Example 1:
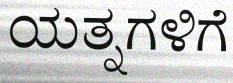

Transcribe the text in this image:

ಯತ್ನಗಳಿಗೆ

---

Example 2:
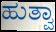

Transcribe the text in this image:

ಹುತ್ವಾ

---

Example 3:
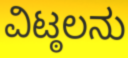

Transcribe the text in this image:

ವಿಟ್ಠಲನು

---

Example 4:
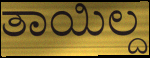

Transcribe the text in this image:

ತಾಯಿಲ್ದ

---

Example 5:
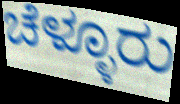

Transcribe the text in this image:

ಚೆಳ್ಳೂರು